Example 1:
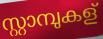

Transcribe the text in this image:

സ്റ്റാമ്പുകള്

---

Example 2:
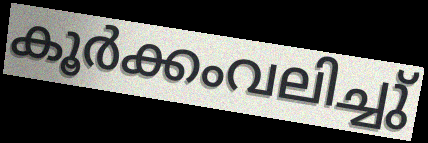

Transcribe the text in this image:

കൂർക്കംവലിച്ചു്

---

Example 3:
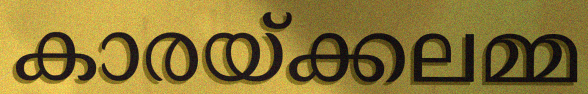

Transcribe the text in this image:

കാരയ്ക്കലമ്മ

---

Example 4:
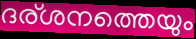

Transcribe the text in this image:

ദര്ശനത്തെയും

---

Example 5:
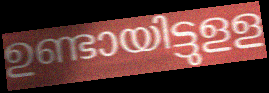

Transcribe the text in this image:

ഉണ്ടായിട്ടുളള